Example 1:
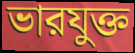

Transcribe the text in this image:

ভারযুক্ত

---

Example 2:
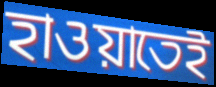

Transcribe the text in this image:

হাওয়াতেই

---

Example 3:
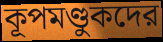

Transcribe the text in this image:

কূপমণ্ডুকদের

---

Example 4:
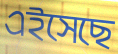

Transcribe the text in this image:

এইসেছে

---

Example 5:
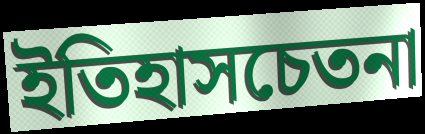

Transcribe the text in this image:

ইতিহাসচেতনা